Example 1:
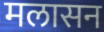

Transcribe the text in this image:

मलासन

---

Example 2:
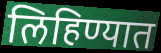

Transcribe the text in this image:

लिहिण्यात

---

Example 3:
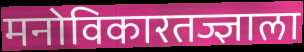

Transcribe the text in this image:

मनोविकारतज्ज्ञाला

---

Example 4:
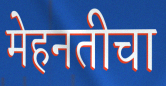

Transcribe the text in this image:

मेहनतीचा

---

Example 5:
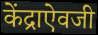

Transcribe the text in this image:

केंद्राऐवजी